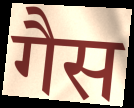
गैस